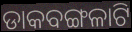
ଡାକବଙ୍ଗଳାଟି